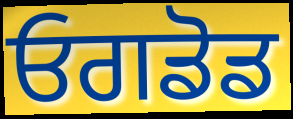
ਓਗਡੋਡ